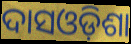
ଦାସଓଡ଼ିଶା